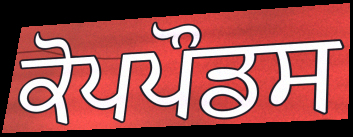
ਕੋਪਪੌਡਸ